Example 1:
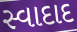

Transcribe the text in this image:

સ્વાદાદ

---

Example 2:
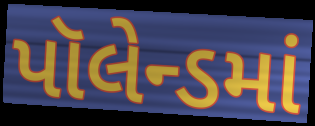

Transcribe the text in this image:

પૉલેન્ડમાં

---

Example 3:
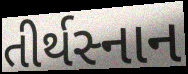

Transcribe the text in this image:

તીર્થસ્નાન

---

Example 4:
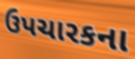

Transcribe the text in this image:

ઉપચારકના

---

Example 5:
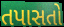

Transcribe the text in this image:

તપાસતો